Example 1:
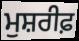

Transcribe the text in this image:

ਮੁਸ਼ਰੀਫ਼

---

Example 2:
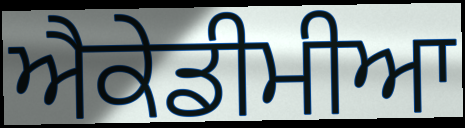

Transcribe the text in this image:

ਐਕੇਡੀਮੀਆ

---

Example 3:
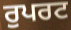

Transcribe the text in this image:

ਰੁਪਰਟ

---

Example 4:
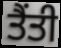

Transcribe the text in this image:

ਤੈਂਤੀ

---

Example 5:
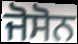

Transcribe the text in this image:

ਜੋਸੋਨ